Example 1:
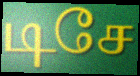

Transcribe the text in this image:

டிசே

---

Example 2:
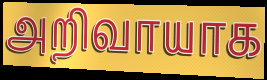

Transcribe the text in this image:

அறிவாயாக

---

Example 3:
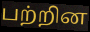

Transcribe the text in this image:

பற்றின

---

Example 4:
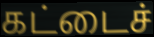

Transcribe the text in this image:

கட்டைச்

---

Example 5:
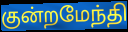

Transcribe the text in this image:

குன்றமேந்தி